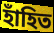
হাঁহিত